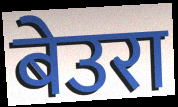
बेउरा